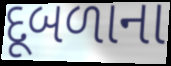
દૂબળાના